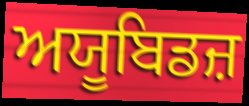
ਅਯੂਬਿਡਜ਼